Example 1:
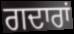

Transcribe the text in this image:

ਗਦਾਰਾਂ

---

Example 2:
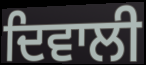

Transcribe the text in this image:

ਦਿਵਾਲੀ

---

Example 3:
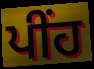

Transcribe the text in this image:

ਪੀਂਹ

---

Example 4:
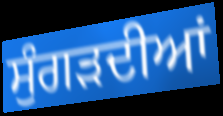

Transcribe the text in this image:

ਸੁੰਗੜਦੀਆਂ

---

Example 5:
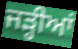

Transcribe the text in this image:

ਜੜ੍ਹੀਆਂ